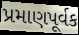
પ્રમાણપૂર્વક